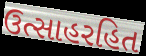
ઉત્સાહરહિત